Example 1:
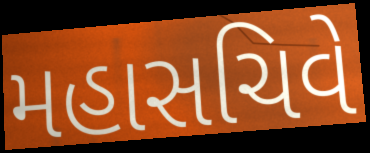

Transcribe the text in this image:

મહાસચિવે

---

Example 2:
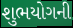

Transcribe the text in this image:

શુભયોગની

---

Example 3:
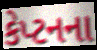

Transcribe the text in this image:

કેપ્ટનના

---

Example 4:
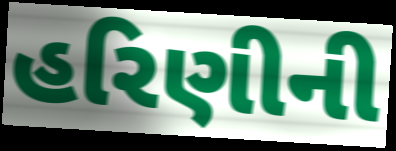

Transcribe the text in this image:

હરિણીની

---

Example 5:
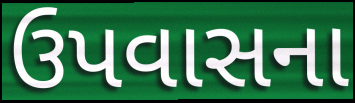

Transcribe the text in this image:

ઉપવાસના